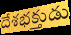
దేశభక్తుడు